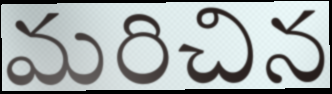
మరిచిన